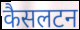
कैसलटन